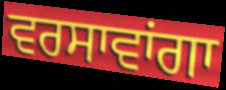
ਵਰਸਾਵਾਂਗਾ